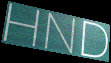
HND